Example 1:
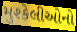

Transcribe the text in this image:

મુશ્કેલીઓનો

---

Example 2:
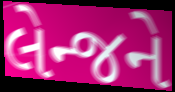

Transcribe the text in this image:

લેન્જને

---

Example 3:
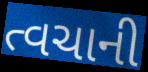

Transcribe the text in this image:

ત્વચાની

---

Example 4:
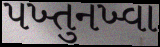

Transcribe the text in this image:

પખ્તુનખ્વા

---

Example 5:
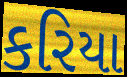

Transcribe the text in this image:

કરિયા